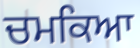
ਚਮਕਿਆ